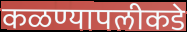
कळण्यापलीकडे